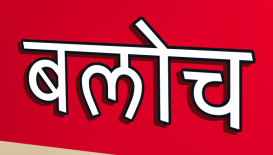
बलोच